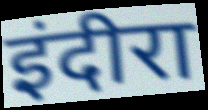
इंदीरा